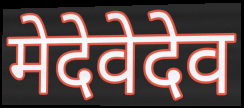
मेदेवेदेव